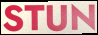
STUN